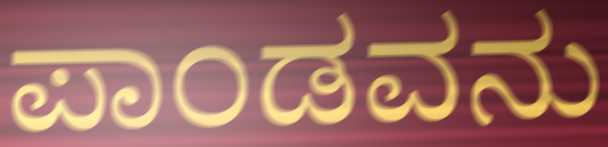
ಪಾಂಡವನು